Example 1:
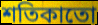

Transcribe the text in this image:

শতিকাতো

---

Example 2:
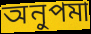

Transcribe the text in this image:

অনুপমা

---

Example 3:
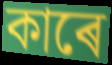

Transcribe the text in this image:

কাৰে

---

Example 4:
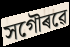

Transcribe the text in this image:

সগৌৰৱে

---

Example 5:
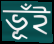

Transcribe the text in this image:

ভূঁই